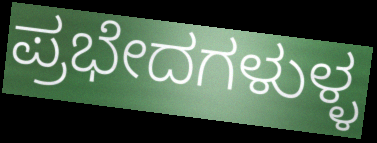
ಪ್ರಭೇದಗಳುಳ್ಳ